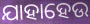
ଯାହାହେଉ